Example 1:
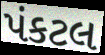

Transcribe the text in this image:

પંકટલ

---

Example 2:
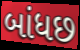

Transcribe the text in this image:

બાંધછ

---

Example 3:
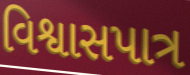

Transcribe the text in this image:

વિશ્વાસપાત્ર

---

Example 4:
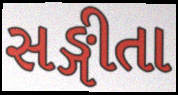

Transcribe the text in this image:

સઙ્ગીતા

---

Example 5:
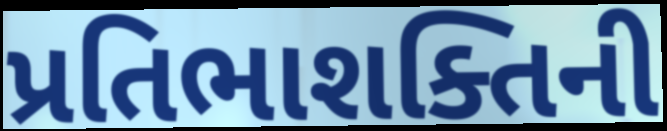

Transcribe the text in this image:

પ્રતિભાશક્તિની